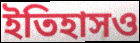
ইতিহাসও